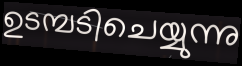
ഉടമ്പടിചെയ്യുന്നു